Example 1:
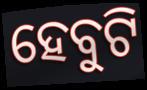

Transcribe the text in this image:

ହେବୁଟି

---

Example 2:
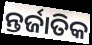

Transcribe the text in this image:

ନ୍ତର୍ଜାତିକ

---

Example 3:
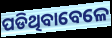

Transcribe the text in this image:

ପଡିଥିବାବେଳେ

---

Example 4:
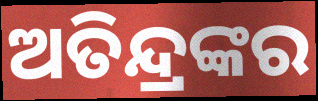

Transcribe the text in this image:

ଅତିନ୍ଦ୍ରଙ୍କର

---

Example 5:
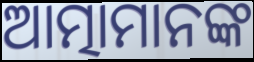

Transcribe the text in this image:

ଆତ୍ମାମାନଙ୍କ